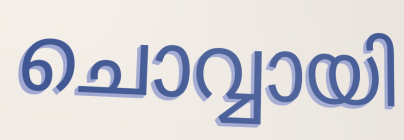
ചൊവ്വായി